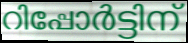
റിപ്പോർട്ടിന്